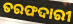
ତରଫଦାରୀ